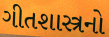
ગીતશાસ્ત્રનો